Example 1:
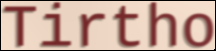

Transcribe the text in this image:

Tirtho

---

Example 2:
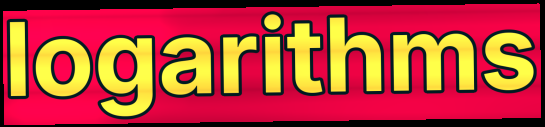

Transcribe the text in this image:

logarithms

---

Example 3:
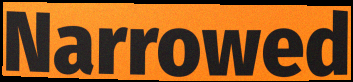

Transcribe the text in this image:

Narrowed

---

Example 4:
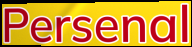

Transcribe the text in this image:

Persenal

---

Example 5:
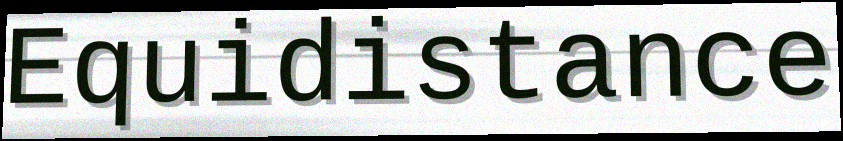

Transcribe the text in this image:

Equidistance